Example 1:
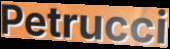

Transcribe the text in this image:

Petrucci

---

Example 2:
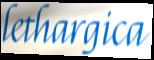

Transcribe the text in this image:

lethargica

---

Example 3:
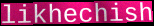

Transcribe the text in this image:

likhechish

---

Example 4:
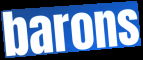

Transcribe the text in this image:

barons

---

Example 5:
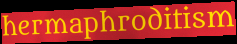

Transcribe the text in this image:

hermaphroditism